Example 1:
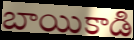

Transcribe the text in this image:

బాయికాడి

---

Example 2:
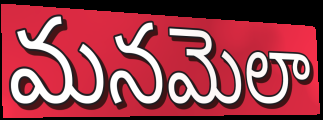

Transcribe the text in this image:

మనమెలా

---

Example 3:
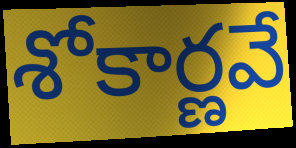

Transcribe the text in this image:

శోకార్ణవే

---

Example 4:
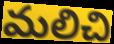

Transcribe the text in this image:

మలిచి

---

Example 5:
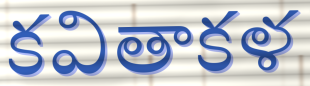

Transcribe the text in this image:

కవితాకళ